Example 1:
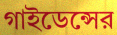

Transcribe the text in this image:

গাইডেন্সের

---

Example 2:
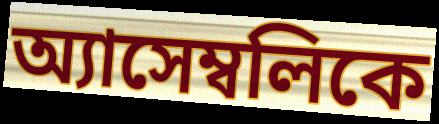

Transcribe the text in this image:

অ্যাসেম্বলিকে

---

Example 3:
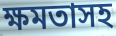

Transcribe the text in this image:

ক্ষমতাসহ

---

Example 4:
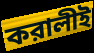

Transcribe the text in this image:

করালীই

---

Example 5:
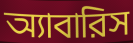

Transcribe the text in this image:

অ্যাবারিস